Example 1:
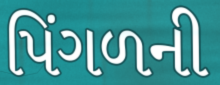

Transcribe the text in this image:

પિંગળની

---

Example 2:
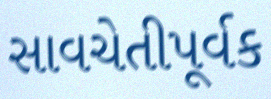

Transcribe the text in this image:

સાવચેતીપૂર્વક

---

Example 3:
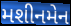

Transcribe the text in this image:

મશીનમેન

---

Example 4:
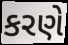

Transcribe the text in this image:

કરણે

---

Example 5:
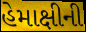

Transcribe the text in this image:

હેમાક્ષીની